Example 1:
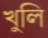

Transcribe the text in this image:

খুলি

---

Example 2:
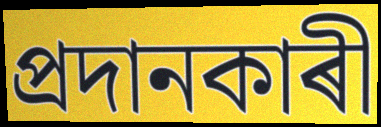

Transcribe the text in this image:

প্ৰদানকাৰী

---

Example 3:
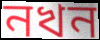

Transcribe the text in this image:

নখন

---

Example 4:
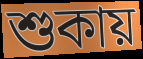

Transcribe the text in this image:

শুকায়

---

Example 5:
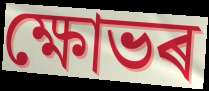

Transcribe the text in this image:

ক্ষোভৰ